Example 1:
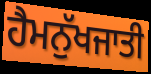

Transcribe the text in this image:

ਹੈਮਨੁੱਖਜਾਤੀ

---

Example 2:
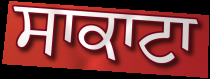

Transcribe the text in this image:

ਸਾਕਾਟਾ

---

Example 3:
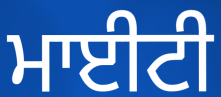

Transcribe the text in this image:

ਮਾਈਟੀ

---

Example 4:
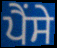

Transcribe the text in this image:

ਪੈਂਸੇ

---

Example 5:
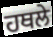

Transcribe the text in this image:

ਹਥਲੇ